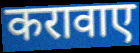
करावाए